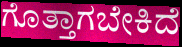
ಗೊತ್ತಾಗಬೇಕಿದೆ